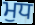
ਮੁਧ